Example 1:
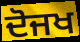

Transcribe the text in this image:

ਦੋਜਖ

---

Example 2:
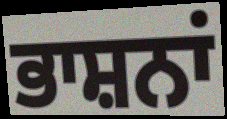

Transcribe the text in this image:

ਭਾਸ਼ਨਾਂ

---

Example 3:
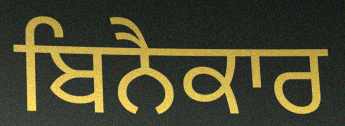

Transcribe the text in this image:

ਬਿਨੈਕਾਰ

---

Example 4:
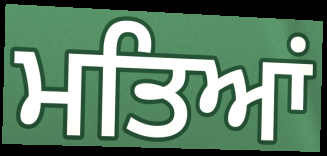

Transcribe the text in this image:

ਮਤਿਆਂ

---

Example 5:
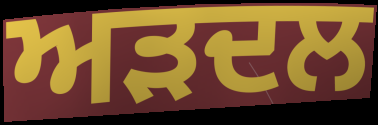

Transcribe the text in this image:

ਅੜਦਲ